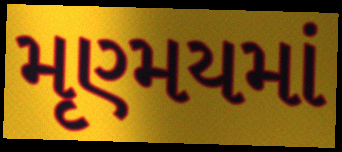
મૃણ્મયમાં